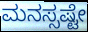
ಮನಸ್ಸಷ್ಟೇ